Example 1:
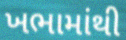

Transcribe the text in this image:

ખભામાંથી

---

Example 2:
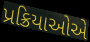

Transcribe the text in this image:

પ્રક્રિયાઓએ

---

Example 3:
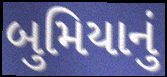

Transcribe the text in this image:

બુમિયાનું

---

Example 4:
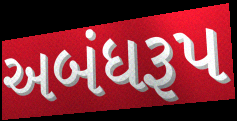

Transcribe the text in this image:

અબંધરૂપ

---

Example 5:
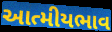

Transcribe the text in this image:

આત્મીયભાવ